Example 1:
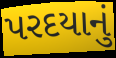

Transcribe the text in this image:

પરદયાનું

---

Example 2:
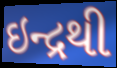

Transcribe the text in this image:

ઇન્દ્રથી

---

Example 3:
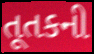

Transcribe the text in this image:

તૂતકની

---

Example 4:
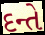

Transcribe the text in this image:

દન્તે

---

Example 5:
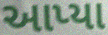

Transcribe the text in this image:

આપ્યા